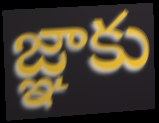
జ్ఞాకు